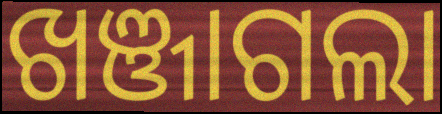
ଖଞ୍ଜାଗଲା